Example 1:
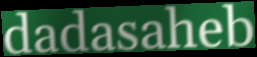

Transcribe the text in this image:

dadasaheb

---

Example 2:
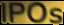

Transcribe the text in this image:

IPOs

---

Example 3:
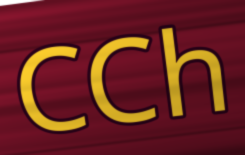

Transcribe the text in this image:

CCh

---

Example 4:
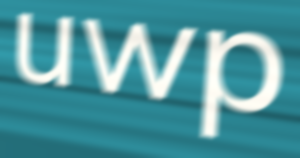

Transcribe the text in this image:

uwp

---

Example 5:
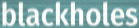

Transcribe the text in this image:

blackholes